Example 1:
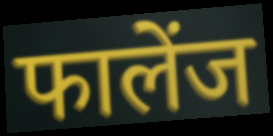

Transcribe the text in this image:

फालेंज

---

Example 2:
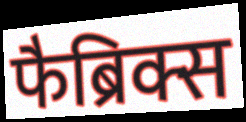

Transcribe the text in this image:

फैब्रिक्स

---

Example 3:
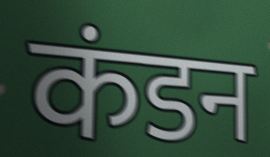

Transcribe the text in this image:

कंडन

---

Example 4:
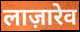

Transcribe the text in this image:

लाज़ारेव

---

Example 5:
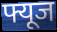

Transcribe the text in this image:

फ्यूज